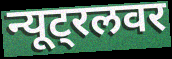
न्यूट्रलवर